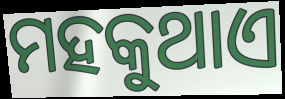
ମହକୁଥାଏ